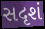
સદૃશં